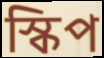
স্কিপ